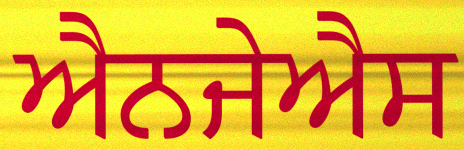
ਐਨਜੇਐਸ